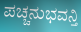
ಪಚ್ಚನುಭವನ್ತಿ